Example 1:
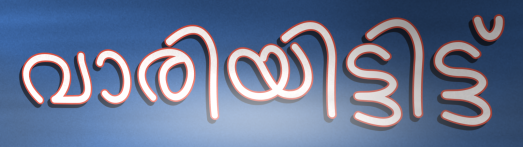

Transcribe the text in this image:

വാരിയിട്ടിട്ട്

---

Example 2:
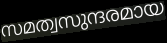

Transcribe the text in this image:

സമത്വസുന്ദരമായ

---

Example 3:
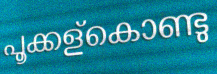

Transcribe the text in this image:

പൂക്കള്കൊണ്ടു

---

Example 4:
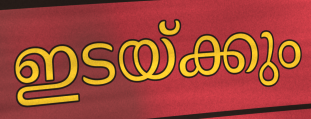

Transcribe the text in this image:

ഇടയ്ക്കും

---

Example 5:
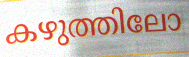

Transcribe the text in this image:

കഴുത്തിലോ